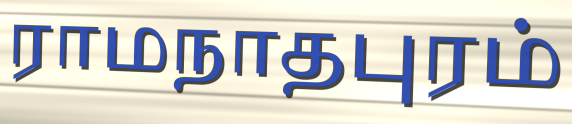
ராமநாதபுரம்